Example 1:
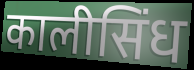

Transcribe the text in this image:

कालीसिंध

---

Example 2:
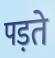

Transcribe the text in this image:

पड़ते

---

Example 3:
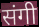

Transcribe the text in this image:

संगी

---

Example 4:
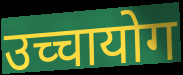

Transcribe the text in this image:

उच्चायोग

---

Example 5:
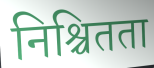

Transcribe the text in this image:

निश्चितता